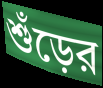
শুঁড়ের